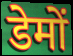
डेमों